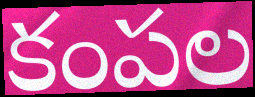
కంపల